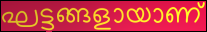
ഘട്ടങ്ങളായാണ്